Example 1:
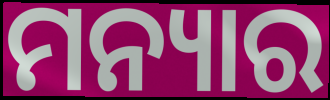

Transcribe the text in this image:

ମନ୍ୟାର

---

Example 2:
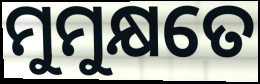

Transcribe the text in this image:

ମୁମୁକ୍ଷତେ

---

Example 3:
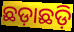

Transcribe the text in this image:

ଛଡ଼ାଛଡ଼ି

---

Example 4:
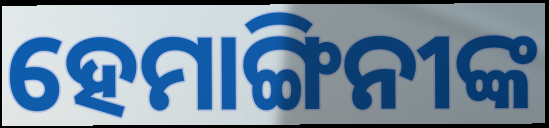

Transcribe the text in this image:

ହେମାଙ୍ଗିନୀଙ୍କ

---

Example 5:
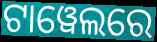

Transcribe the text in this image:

ଟାୱେଲରେ